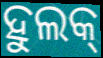
ହୁଲକ୍